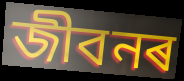
জীবনৰ